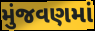
મુંજવણમાં